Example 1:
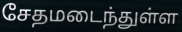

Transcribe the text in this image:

சேதமடைந்துள்ள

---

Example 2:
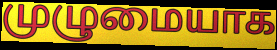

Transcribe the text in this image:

முழுமையாக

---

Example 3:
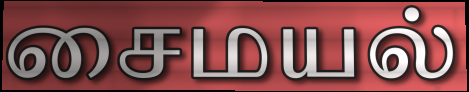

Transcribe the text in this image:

சைமயல்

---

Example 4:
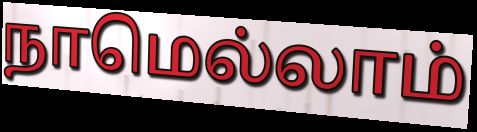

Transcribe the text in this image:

நாமெல்லாம்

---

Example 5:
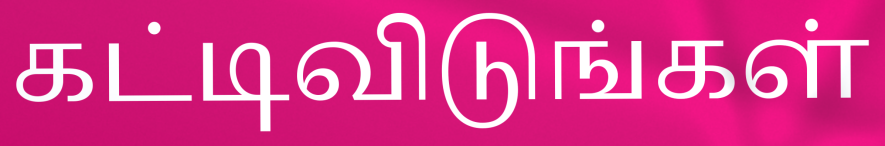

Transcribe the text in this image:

கட்டிவிடுங்கள்